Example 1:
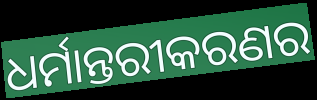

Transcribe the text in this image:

ଧର୍ମାନ୍ତରୀକରଣର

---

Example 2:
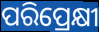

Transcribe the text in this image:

ପରିପ୍ରେକ୍ଷୀ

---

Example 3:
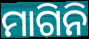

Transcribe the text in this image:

ମାଗିନି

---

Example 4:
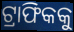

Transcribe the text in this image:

ଟ୍ରାଫିକକୁ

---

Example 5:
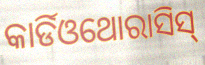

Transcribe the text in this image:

କାର୍ଡିଓଥୋରାସିସ୍